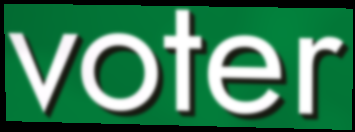
voter